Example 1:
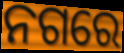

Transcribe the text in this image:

ନଗରେ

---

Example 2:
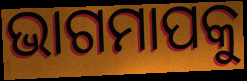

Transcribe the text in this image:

ଭାଗମାପକୁ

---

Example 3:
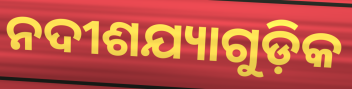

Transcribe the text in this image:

ନଦୀଶଯ୍ୟାଗୁଡ଼ିକ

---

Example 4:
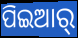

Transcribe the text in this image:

ପିଇଆର୍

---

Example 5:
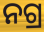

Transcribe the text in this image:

ନଗ୍ର